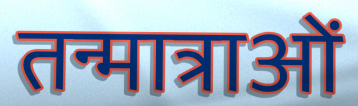
तन्मात्राओं